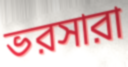
ভরসারা